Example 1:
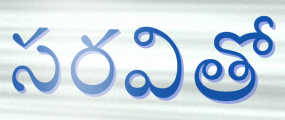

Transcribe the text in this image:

సరవితో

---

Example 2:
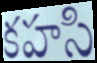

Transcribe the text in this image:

కహసి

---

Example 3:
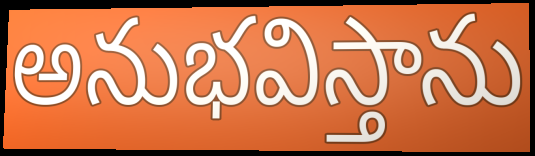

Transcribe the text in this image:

అనుభవిస్తాను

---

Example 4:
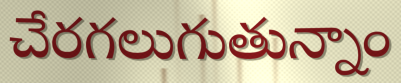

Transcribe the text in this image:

చేరగలుగుతున్నాం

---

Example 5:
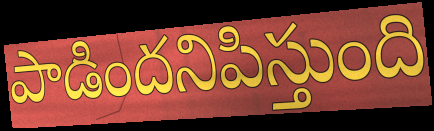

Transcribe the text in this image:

పాడిందనిపిస్తుంది